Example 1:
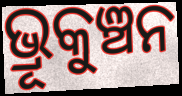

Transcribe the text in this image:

ଭ୍ରୂକୁଞ୍ଚନ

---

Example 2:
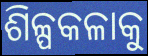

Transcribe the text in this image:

ଶିଳ୍ପକଳାକୁ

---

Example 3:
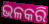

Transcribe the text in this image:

ଭଳକରି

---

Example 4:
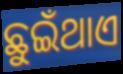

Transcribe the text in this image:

ଛୁଇଁଥାଏ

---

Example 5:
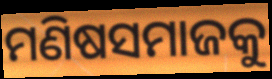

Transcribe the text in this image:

ମଣିଷସମାଜକୁ